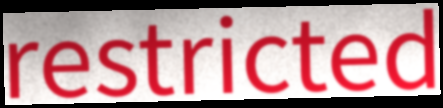
restricted